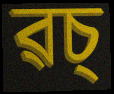
ৱচ্